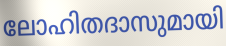
ലോഹിതദാസുമായി